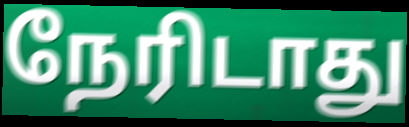
நேரிடாது